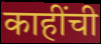
काहींची